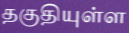
தகுதியுள்ள